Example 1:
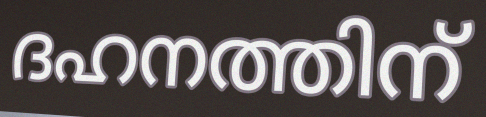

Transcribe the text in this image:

ദഹനത്തിന്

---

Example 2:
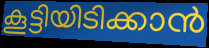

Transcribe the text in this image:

കൂട്ടിയിടിക്കാൻ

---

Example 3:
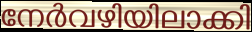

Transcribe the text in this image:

നേർവഴിയിലാക്കി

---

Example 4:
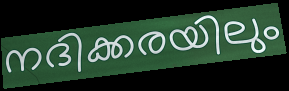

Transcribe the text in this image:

നദിക്കരയിലും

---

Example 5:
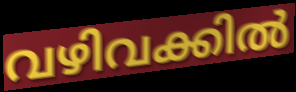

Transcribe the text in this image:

വഴിവക്കിൽ